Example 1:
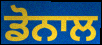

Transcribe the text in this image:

ਡੋਨਾਲ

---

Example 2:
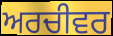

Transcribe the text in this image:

ਅਰਚੀਵਰ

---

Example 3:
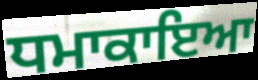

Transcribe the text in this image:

ਧਮਾਕਾਇਆ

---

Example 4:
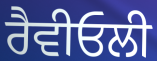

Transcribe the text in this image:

ਰੈਵੀਓਲੀ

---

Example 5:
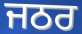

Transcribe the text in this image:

ਜਠਰ